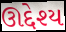
ઊદ્દેશ્ય